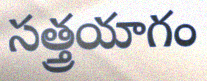
సత్త్రయాగం